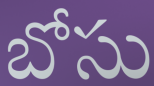
బోసు